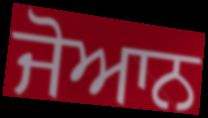
ਜੋਆਨ